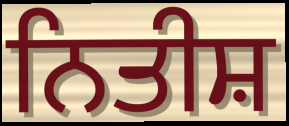
ਨਿਤੀਸ਼